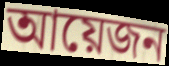
আয়েজন